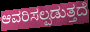
ಆವರಿಸಲ್ಪಡುತ್ತದೆ